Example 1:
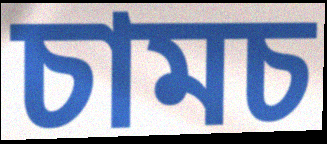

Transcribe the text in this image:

চামচ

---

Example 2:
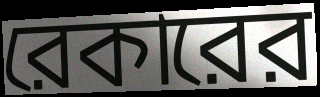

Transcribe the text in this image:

রেকারের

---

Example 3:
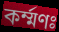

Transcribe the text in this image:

কর্ম্মণঃ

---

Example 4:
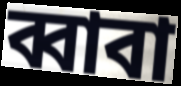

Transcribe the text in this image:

ব্বাবা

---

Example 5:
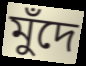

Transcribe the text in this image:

মুঁদে